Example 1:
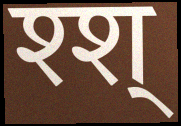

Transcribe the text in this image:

श्श्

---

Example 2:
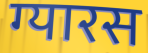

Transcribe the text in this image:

ग्यारस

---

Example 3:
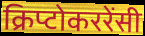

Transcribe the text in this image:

क्रिप्टोकररेंसी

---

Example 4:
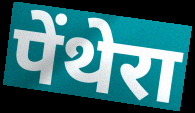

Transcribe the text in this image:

पेंथेरा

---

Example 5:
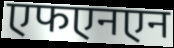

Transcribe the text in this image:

एफएनएन